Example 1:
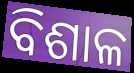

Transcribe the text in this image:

ବିଶାଳ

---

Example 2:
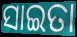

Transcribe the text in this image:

ସାଇତା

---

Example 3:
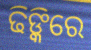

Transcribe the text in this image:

ଢିଙ୍କିରେ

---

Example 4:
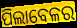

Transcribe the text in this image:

ପିଲାବେଳର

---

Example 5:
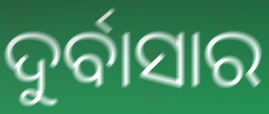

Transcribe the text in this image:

ଦୁର୍ବାସାର